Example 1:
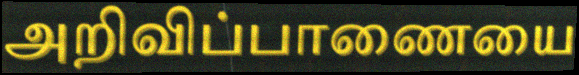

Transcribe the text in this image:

அறிவிப்பாணையை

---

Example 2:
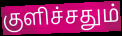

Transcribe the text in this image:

குளிச்சதும்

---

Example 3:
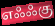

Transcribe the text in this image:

எஃஃகு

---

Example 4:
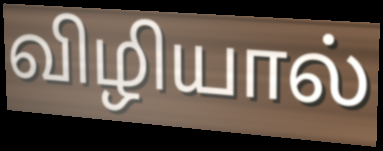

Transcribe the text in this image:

விழியால்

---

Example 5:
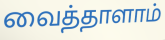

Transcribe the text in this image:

வைத்தாளாம்